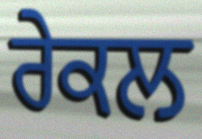
ਰੇਕਲ